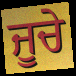
ਜੂਚੇ